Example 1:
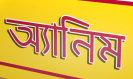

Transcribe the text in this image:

অ্যানিম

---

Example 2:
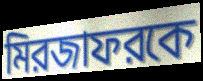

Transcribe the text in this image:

মিরজাফরকে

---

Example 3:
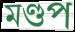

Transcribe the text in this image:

মণ্ডপ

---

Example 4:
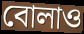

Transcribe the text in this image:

বোলাও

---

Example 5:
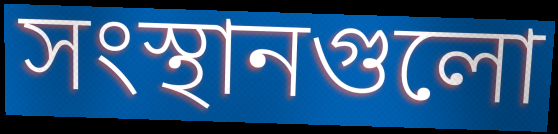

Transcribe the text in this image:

সংস্থানগুলো